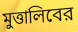
মুত্তালিবের